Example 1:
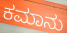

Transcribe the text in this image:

ಕಮಾನು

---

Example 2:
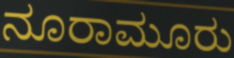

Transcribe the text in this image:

ನೂರಾಮೂರು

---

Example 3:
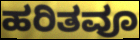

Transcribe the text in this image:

ಹರಿತವೂ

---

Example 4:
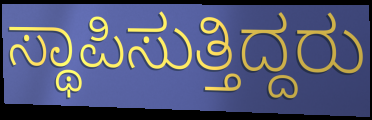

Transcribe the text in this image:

ಸ್ಥಾಪಿಸುತ್ತಿದ್ದರು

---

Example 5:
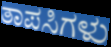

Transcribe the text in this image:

ತಾಪಸಿಗಳು